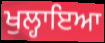
ਖੁਲ੍ਹਾਇਆ